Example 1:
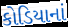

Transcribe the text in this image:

કોડિયાનાં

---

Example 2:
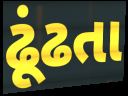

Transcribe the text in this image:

ઢૂંઢતા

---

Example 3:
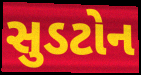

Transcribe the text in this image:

સુડટોન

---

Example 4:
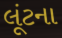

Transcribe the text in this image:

લૂંટના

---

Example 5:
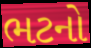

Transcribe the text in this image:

ભટનો